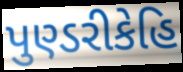
પુણ્ડરીકેહિ